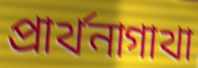
প্রার্থনাগাথা